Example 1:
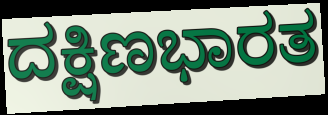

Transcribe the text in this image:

ದಕ್ಷಿಣಭಾರತ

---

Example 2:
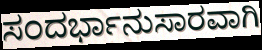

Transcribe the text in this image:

ಸಂದರ್ಭಾನುಸಾರವಾಗಿ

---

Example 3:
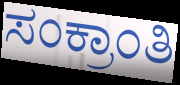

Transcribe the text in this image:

ಸಂಕ್ರಾಂತಿ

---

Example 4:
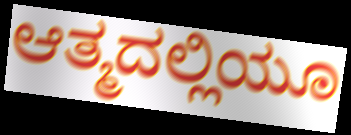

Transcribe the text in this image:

ಆತ್ಮದಲ್ಲಿಯೂ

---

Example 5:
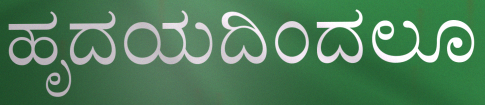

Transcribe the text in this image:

ಹೃದಯದಿಂದಲೂ